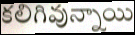
కలిగివున్నాయి